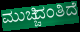
ಮುಚ್ಚಿದಂತಿದೆ